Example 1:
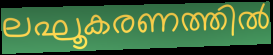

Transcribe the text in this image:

ലഘൂകരണത്തിൽ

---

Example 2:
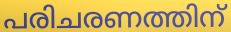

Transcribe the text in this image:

പരിചരണത്തിന്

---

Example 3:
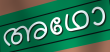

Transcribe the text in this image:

അഥോ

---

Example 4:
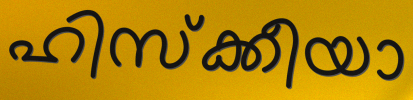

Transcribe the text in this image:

ഹിസ്ക്കീയാ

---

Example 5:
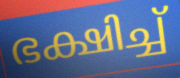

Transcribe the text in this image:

ഭക്ഷിച്ച്